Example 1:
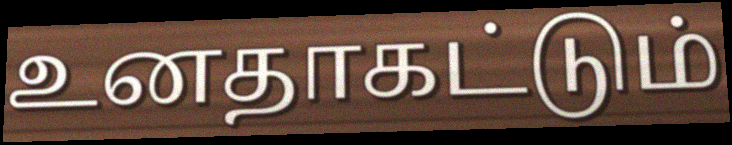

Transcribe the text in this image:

உனதாகட்டும்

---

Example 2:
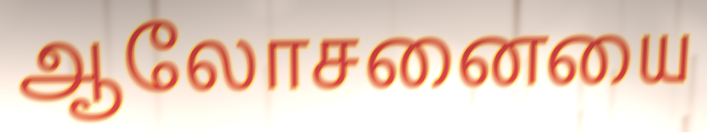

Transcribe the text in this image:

ஆலோசனையை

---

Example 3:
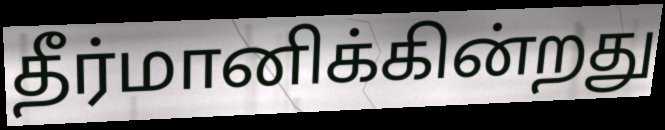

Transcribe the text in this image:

தீர்மானிக்கின்றது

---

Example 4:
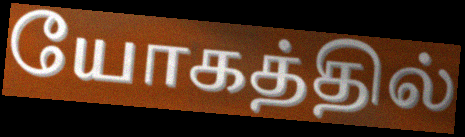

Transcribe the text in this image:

யோகத்தில்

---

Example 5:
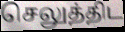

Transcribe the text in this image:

செலுத்திட